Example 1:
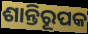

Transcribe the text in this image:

ଶାନ୍ତିରୂପକ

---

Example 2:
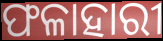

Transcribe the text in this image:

ଫଳାହାରୀ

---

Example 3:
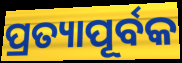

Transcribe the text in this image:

ପ୍ରତ୍ୟାପୂର୍ବକ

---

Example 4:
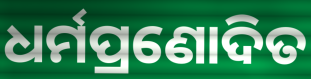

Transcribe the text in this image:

ଧର୍ମପ୍ରଣୋଦିତ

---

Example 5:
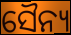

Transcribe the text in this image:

ସୈନ୍ୟ